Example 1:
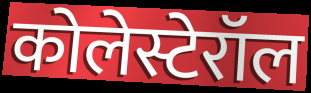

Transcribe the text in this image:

कोलेस्टेरॉल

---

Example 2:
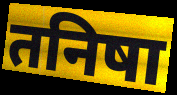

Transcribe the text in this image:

तनिषा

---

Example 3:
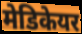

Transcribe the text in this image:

मेडिकेयर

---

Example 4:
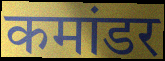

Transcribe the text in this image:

कमांडर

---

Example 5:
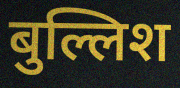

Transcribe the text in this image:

बुल्लिश